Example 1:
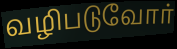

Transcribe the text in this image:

வழிபடுவோர்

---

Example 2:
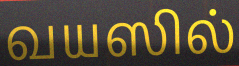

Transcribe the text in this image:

வயஸில்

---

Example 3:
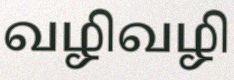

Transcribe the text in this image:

வழிவழி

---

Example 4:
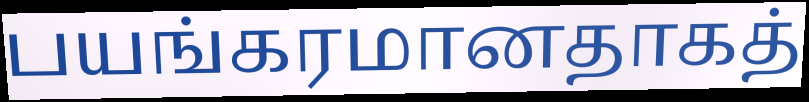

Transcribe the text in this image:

பயங்கரமானதாகத்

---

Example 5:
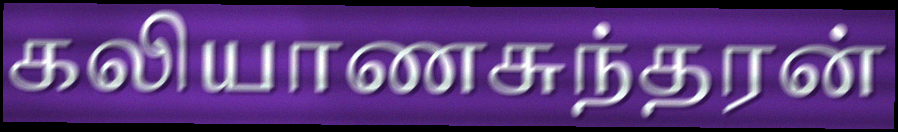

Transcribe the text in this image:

கலியாணசுந்தரன்